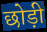
छोड़ी